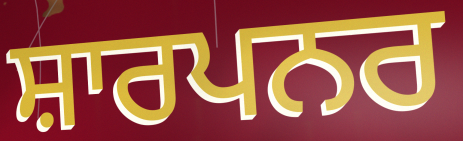
ਸ਼ਾਰਪਨਰ